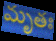
మృతః